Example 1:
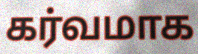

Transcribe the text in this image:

கர்வமாக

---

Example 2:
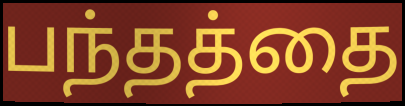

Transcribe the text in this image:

பந்தத்தை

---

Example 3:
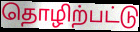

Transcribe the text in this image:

தொழிற்பட்டு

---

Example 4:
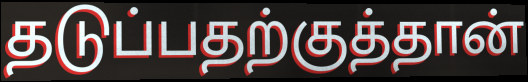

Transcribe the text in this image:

தடுப்பதற்குத்தான்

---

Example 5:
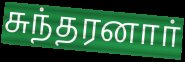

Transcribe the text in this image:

சுந்தரனார்